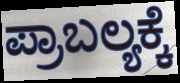
ಪ್ರಾಬಲ್ಯಕ್ಕೆ